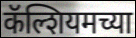
कॅल्शियमच्या